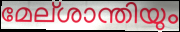
മേല്ശാന്തിയും